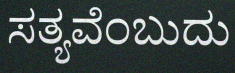
ಸತ್ಯವೆಂಬುದು